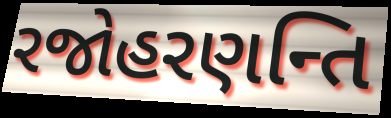
રજોહરણન્તિ